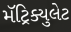
મૅટ્રિક્યુલેટ